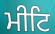
ਮੀਟਿ